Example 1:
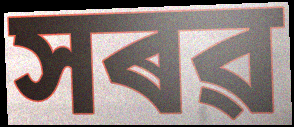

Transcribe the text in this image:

সৰৱ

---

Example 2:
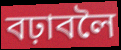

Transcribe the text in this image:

বঢ়াবলৈ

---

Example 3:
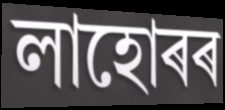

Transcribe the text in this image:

লাহোৰৰ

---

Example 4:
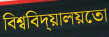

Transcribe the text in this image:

বিশ্ববিদ্য়ালয়তো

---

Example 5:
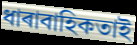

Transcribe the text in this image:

ধাৰাবাহিকতাই